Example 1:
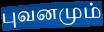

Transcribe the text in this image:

புவனமும்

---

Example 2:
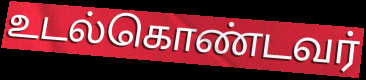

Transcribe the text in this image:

உடல்கொண்டவர்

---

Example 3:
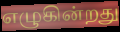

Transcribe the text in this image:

எழுகின்றது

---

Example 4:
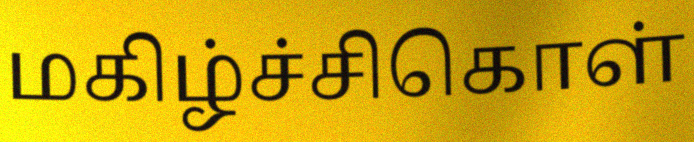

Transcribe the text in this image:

மகிழ்ச்சிகொள்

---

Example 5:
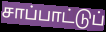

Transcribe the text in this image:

சாப்பாட்டுப்